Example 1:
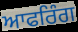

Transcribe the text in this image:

ਆਫਰਿੰਗ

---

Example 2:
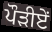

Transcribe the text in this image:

ਪੌੜੀਏਂ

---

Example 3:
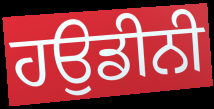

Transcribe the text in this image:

ਹਉਡੀਨੀ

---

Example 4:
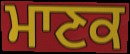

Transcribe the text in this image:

ਮਾਣਕ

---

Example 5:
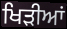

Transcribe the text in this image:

ਖਿੜੀਆਂ